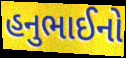
હનુભાઈનો